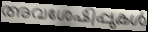
അവശേഷിപ്പുകൾ